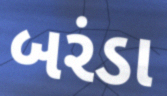
બરંડા